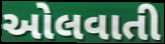
ઓલવાતી